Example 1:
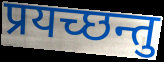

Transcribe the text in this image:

प्रयच्छन्तु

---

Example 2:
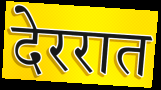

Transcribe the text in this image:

देररात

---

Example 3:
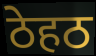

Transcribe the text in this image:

ठेहठ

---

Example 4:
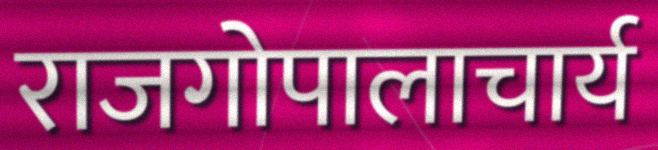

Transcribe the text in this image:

राजगोपालाचार्य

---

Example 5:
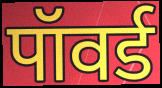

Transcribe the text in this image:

पॉवर्ड